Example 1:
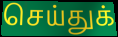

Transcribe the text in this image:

செய்துக்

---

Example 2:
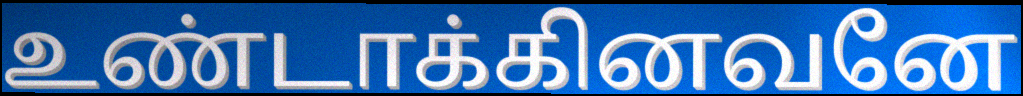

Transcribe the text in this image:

உண்டாக்கினவனே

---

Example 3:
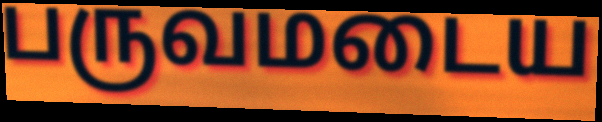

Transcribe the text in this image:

பருவமடைய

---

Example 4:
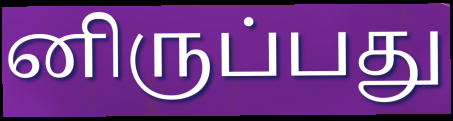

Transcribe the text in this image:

னிருப்பது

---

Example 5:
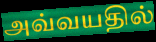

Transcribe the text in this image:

அவ்வயதில்